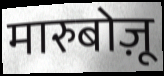
मारुबोज़ू